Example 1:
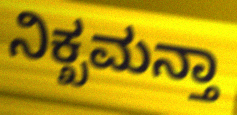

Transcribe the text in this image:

ನಿಕ್ಖಮನ್ತಾ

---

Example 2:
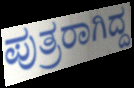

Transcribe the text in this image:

ಪುತ್ರರಾಗಿದ್ದ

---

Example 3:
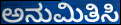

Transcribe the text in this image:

ಅನುಮಿತಿಸಿ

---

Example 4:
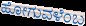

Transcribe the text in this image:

ಹೋಗುವಳೆಂಬ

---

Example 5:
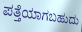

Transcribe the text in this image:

ಪತ್ತೆಯಾಗಬಹುದು